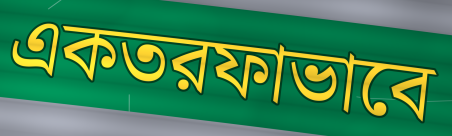
একতরফাভাবে